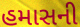
હમાસની